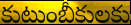
కుటుంబీకులకు